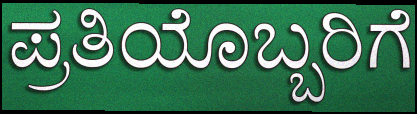
ಪ್ರತಿಯೊಬ್ಬರಿಗೆ